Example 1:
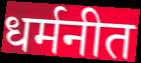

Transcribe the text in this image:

धर्मनीत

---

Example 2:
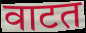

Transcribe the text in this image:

वाटत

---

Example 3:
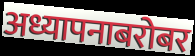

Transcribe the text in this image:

अध्यापनाबरोबर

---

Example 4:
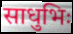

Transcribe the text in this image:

साधुभिः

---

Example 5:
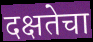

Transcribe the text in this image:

दक्षतेचा